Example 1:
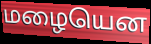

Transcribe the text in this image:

மழையென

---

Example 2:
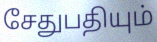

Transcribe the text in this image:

சேதுபதியும்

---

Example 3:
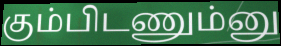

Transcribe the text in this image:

கும்பிடணும்னு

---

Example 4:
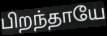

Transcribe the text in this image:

பிறந்தாயே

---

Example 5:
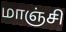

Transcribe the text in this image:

மாஞ்சி